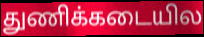
துணிக்கடையில